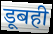
डूबही